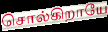
சொல்கிறாயே